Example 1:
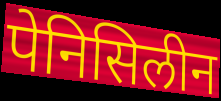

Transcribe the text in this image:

पेनिसिलीन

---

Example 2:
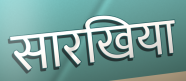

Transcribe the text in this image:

सारखिया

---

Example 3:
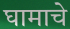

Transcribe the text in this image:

घामाचे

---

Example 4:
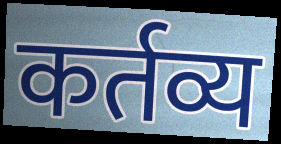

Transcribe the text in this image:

कर्तव्य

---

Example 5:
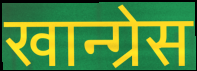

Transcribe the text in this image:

खान्ग्रेस